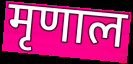
मृणाल